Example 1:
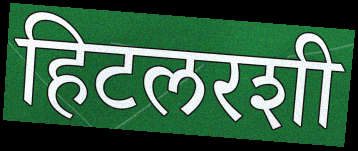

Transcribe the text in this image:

हिटलरशी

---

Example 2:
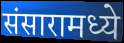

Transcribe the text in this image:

संसारामध्ये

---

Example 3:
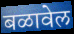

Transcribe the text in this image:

बळावेल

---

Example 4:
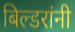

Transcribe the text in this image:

बिल्डरांनी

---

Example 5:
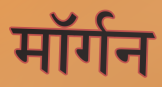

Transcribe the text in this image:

मॉर्गन